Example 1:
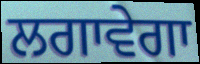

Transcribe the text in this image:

ਲਗਾਵੇਗਾ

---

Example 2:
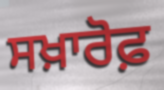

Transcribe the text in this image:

ਸਖ਼ਾਰੋਫ਼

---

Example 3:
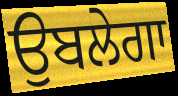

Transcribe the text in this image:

ਉਬਲੇਗਾ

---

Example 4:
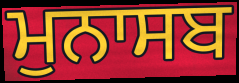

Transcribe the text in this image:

ਮੁਨਾਸਬ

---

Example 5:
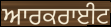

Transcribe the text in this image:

ਆਰਕਰਾਈਟ